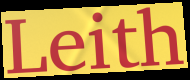
Leith